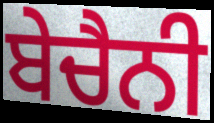
ਬੇਚੈਨੀ